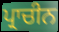
ਪ੍ਰਾਚੀਨ